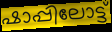
ഷാപ്പിലോട്ട്